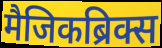
मैजिकब्रिक्स